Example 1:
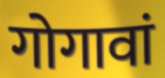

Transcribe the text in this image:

गोगावां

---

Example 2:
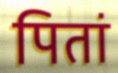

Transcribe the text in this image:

पितां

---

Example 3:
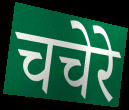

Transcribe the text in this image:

चचेरे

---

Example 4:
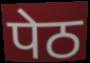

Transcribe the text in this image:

पेठ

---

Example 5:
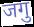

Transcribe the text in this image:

जगु